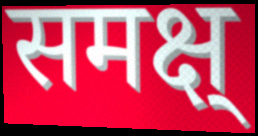
समक्ष्